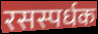
रसस्पर्धक